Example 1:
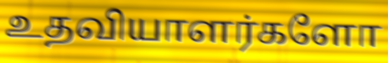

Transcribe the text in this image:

உதவியாளர்களோ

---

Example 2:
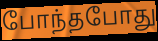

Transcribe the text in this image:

போந்தபோது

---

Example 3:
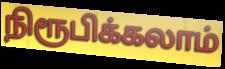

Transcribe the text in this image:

நிரூபிக்கலாம்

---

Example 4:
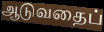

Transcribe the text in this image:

ஆடுவதைப்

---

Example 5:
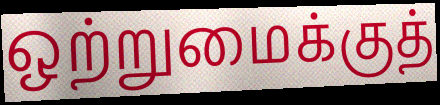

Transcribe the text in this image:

ஒற்றுமைக்குத்